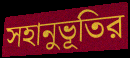
সহানুভূতির